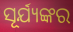
ସୂର୍ଯ୍ୟଙ୍କର